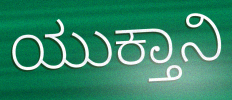
ಯುಕ್ತಾನಿ